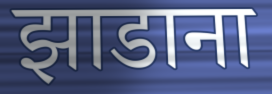
झाडाना